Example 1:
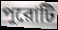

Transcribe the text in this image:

পুরোটি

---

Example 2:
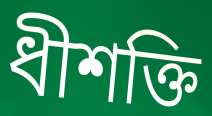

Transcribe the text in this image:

ধীশক্তি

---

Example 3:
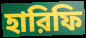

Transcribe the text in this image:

হারিফি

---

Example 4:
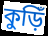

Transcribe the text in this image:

কুড়িঁ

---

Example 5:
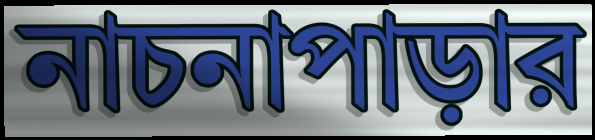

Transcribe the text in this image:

নাচনাপাড়ার